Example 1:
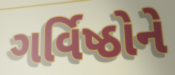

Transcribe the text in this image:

ગર્વિષ્ઠોને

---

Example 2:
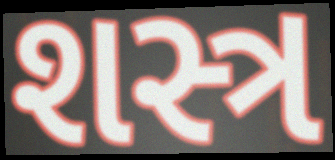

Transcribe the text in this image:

શસ્ત્ર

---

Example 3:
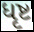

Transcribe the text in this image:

ધૃષ્ટ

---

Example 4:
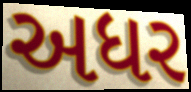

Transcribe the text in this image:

અધર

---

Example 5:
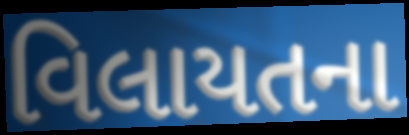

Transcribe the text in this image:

વિલાયતના